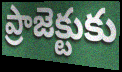
ప్రాజెక్టుకు